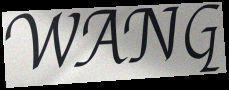
WANG